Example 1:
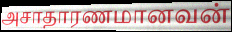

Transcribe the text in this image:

அசாதாரணமானவன்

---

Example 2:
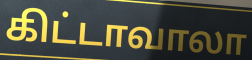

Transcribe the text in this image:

கிட்டாவாலா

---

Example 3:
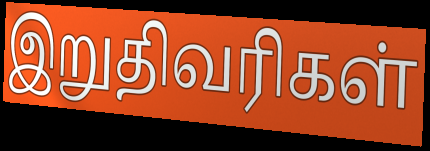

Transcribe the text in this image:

இறுதிவரிகள்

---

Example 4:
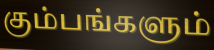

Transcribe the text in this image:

கும்பங்களும்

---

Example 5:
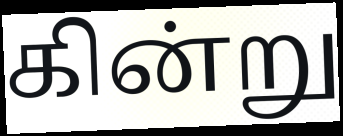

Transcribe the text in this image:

கின்று